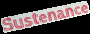
Sustenance